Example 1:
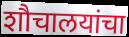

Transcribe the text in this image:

शौचालयांचा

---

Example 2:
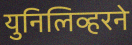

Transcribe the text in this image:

युनिलिव्हरने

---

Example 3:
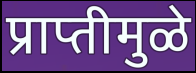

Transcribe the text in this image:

प्राप्तीमुळे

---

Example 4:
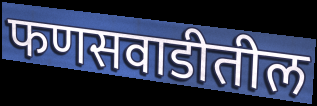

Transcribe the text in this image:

फणसवाडीतील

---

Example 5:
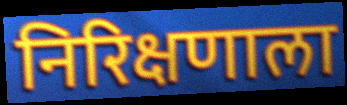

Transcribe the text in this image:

निरिक्षणाला